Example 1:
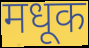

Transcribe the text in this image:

मधूक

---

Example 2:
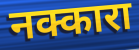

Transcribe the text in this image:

नक्कारा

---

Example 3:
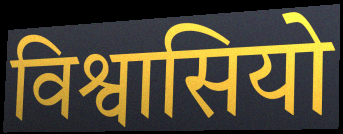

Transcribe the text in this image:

विश्वासियो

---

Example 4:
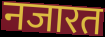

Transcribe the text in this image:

नजारत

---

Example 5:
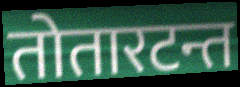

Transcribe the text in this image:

तोतारटन्त